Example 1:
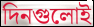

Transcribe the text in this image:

দিনগুলোই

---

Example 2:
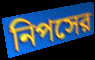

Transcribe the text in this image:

নিপসের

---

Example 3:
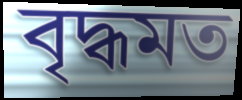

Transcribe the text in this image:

বৃদ্ধমত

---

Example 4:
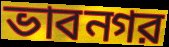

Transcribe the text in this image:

ভাবনগর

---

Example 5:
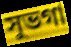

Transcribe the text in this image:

সুভগা